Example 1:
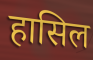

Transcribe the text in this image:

हासिल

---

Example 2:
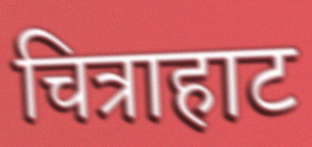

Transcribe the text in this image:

चित्राहाट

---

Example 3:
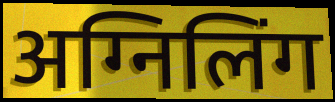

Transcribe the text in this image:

अग्निलिंग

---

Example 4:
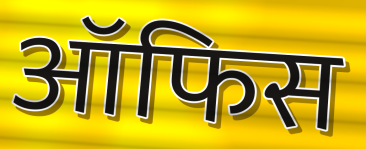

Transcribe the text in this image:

ऑफिस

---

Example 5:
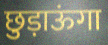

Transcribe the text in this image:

छुड़ाऊंगा